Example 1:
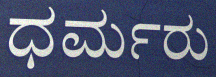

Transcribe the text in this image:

ಧರ್ಮರು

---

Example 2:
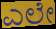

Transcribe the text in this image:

ಎಲೇ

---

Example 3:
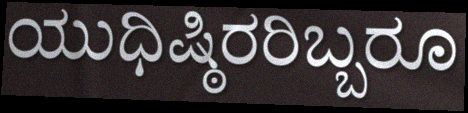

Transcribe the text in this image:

ಯುಧಿಷ್ಠಿರರಿಬ್ಬರೂ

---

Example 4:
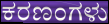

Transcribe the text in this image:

ಕರಣಂಗಳು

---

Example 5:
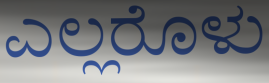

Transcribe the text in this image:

ಎಲ್ಲರೊಳು